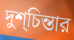
দুশ্‌চিন্তার